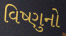
વિષ્ણુનો